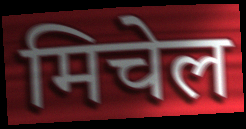
मिचेल